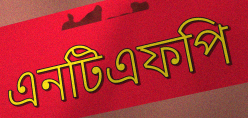
এনটিএফপি